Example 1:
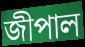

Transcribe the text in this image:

জীপাল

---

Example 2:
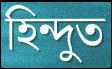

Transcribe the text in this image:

হিন্দুত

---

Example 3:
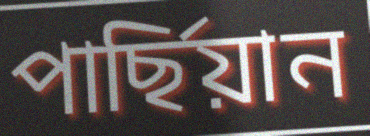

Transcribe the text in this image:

পাৰ্ছিয়ান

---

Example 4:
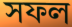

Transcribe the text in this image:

সফল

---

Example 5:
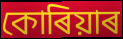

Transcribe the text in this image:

কোৰিয়াৰ